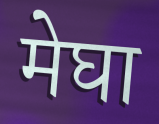
मेघा